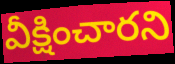
వీక్షించారని